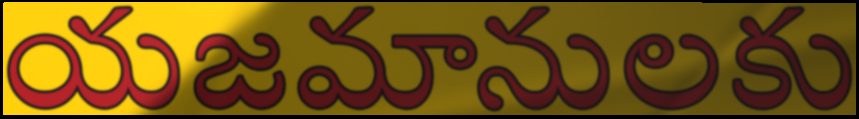
యజమానులకు